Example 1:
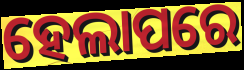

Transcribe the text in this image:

ହେଲାପରେ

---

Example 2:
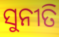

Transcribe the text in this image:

ସୁନୀତି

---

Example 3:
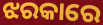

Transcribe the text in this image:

ଝରକାରେ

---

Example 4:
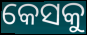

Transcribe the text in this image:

କେସକୁ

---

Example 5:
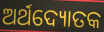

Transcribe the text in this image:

ଅର୍ଥଦ୍ୟୋତକ